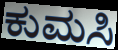
ಕುಮಸಿ